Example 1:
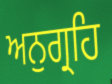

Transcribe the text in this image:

ਅਨੁਗ੍ਰਹਿ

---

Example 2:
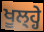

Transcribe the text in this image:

ਖੂਲ੍ਹ੍ਹੇ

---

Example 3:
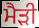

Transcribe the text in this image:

ਮੈੜੀ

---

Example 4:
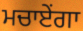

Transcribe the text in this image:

ਮਚਾਏਂਗਾ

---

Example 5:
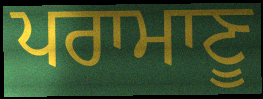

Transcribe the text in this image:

ਪਰਾਮਾਣੂ